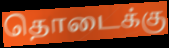
தொடைக்கு